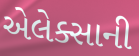
એલેક્સાની